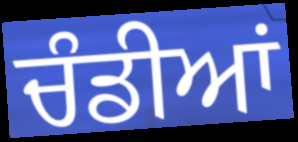
ਚੰਡੀਆਂ